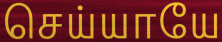
செய்யாயே